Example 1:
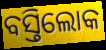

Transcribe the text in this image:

ବସ୍ତିଲୋକ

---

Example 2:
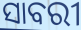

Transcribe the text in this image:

ସାବରୀ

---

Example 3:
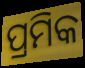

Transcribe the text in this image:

ପ୍ରମିକ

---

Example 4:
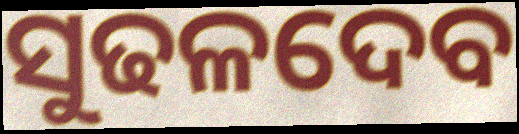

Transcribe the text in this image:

ସୁଢଳଦେବ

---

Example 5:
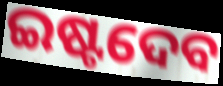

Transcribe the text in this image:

ଇଷ୍ଟଦେବ